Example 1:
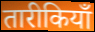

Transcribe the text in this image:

तारीकियाँ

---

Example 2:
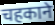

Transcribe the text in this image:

चहकाने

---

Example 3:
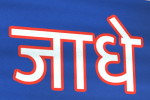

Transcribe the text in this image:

जाधे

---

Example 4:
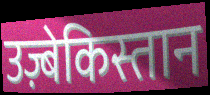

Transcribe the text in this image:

उज़्बेकिस्तान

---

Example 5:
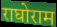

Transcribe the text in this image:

राघोराम